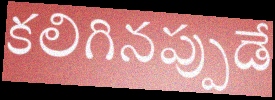
కలిగినప్పుడే